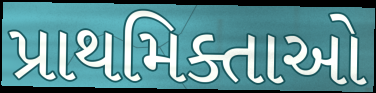
પ્રાથમિક્તાઓ